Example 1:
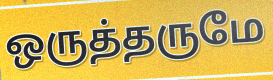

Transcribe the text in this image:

ஒருத்தருமே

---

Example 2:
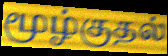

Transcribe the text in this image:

மூழ்குதல்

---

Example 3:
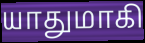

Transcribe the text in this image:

யாதுமாகி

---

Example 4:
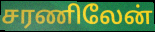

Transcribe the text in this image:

சரணிலேன்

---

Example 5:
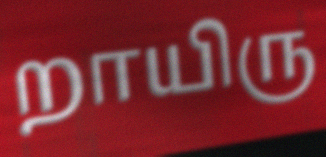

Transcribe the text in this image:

றாயிரு